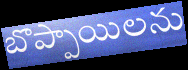
బొప్పాయిలను